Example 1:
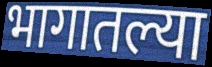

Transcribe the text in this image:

भागातल्या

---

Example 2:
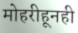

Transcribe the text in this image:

मोहरीहूनही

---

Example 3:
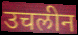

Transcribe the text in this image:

उचलीन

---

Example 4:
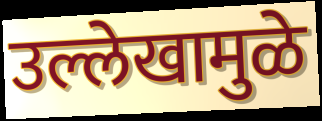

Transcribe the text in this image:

उल्लेखामुळे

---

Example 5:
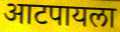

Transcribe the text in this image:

आटपायला